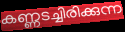
കണ്ണടച്ചിരിക്കുന്ന